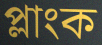
প্লাংক